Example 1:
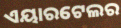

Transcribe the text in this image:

ଏୟାରଟେଲର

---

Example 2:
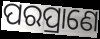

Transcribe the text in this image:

ପରପ୍ରାଣେ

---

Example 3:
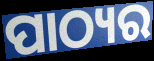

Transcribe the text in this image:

ପାଠ୍ୟର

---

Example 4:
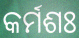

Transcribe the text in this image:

କର୍ମଶଃ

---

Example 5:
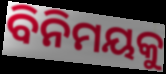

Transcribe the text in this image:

ବିନିମୟକୁ